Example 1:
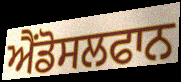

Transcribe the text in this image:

ਐਂਡੋਸਲਫਾਨ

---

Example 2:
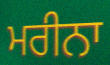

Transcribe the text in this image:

ਮਰੀਨਾ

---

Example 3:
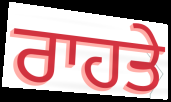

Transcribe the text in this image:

ਰਾਹਤੇ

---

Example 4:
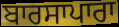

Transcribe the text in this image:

ਬਾਰਸਾਪਾਰਾ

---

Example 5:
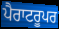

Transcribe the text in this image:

ਪੈਰਾਟਰੂਪਰ